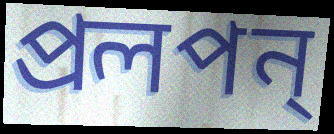
প্রলপন্